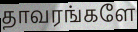
தாவரங்களே